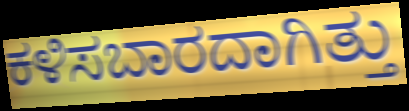
ಕಳಿಸಬಾರದಾಗಿತ್ತು